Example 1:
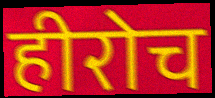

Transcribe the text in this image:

हीरोच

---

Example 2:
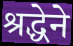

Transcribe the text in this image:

श्रद्धेने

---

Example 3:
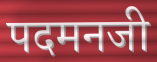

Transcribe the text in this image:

पदमनजी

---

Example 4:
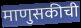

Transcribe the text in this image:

माणुसकीची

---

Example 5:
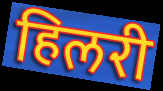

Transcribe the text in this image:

हिलरी